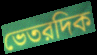
ভেতরদিক